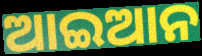
ଆଇଆନ